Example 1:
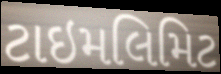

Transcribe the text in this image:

ટાઇમલિમિટ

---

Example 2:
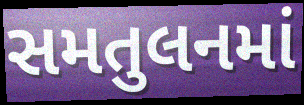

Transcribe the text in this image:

સમતુલનમાં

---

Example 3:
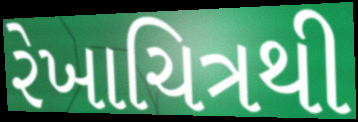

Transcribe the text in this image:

રેખાચિત્રથી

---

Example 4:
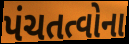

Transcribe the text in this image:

પંચતત્વોના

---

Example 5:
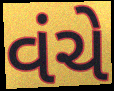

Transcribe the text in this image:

વંચે